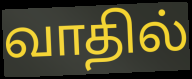
வாதில்